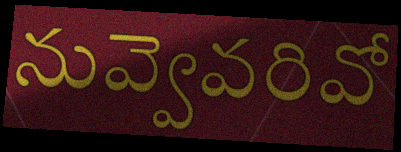
నువ్వెవరివో